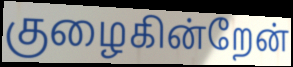
குழைகின்றேன்